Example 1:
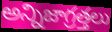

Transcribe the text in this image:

అన్నిజాగ్రత్తలు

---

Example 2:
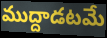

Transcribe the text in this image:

ముద్దాడటమే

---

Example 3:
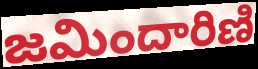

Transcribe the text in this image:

జమిందారిణి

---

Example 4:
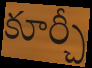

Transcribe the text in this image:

కూర్చీ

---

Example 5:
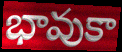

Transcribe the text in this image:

భావుకా